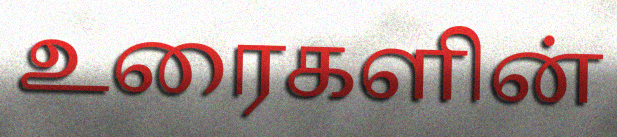
உரைகளின்